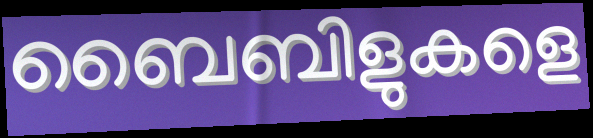
ബൈബിളുകളെ